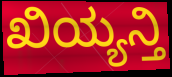
ಖಿಯ್ಯನ್ತಿ